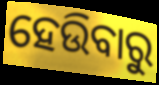
ହେଉିବାରୁ